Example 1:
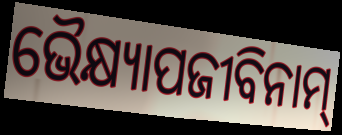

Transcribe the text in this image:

ଭୈକ୍ଷ୍ୟାପଜୀବିନାମ୍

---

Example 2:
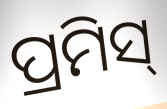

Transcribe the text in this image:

ପ୍ରମିସ୍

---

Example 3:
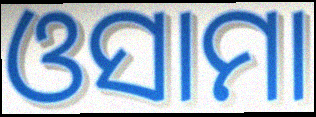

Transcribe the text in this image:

ଓସାମା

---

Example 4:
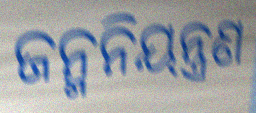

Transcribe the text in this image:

ଜନ୍ମନିୟନ୍ତ୍ରଣ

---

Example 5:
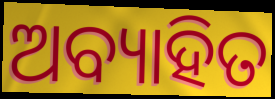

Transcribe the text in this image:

ଅବ୍ୟାହିତ